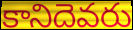
కానిదెవరు